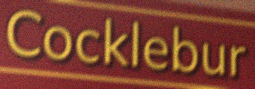
Cocklebur